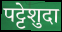
पट्टेशुदा